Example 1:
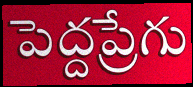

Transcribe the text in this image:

పెద్దప్రేగు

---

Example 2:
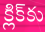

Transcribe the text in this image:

క్లిక్‌కు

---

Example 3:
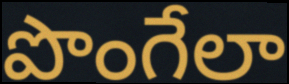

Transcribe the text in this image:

పొంగేలా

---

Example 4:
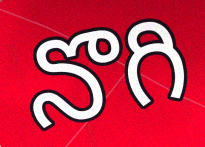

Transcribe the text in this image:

నొగి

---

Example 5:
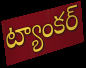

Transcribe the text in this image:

ట్యాంకర్